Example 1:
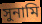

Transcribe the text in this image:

সুনামি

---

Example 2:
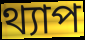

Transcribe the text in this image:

থ্যাপ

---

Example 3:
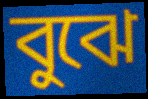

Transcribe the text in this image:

বুঝে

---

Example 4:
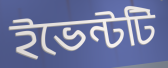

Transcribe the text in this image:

ইভেন্টটি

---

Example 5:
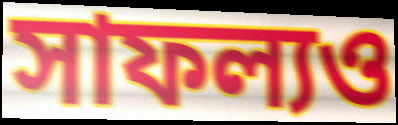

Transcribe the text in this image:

সাফল্যও